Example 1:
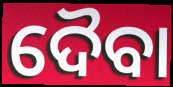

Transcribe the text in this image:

ଦୈବା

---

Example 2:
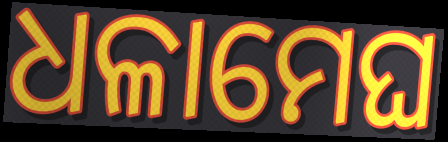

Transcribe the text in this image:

ଧଳାମେଘ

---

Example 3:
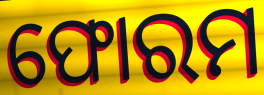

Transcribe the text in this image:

ଫୋରମ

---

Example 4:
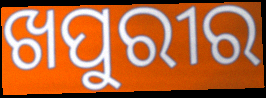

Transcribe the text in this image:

ଖପୁରୀର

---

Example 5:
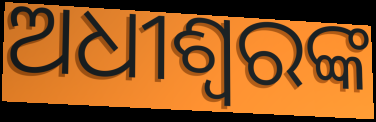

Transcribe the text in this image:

ଅଧୀଶ୍ୱରଙ୍କ